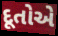
દૂતોએ